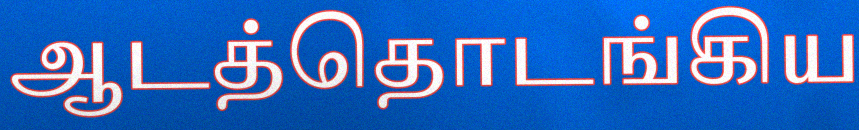
ஆடத்தொடங்கிய